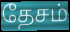
தேசம்